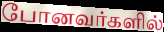
போனவர்களில்